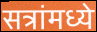
सत्रांमध्ये